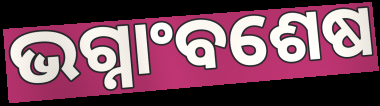
ଭଗ୍ନାଂବଶେଷ